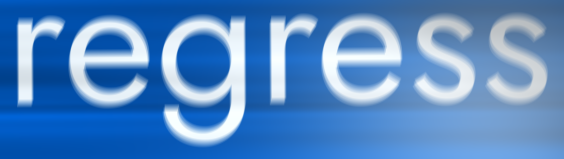
regress